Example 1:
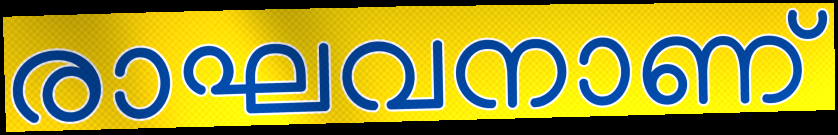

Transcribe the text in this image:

രാഘവനാണ്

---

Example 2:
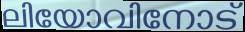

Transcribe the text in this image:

ലിയോവിനോട്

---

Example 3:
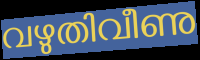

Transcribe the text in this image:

വഴുതിവീണു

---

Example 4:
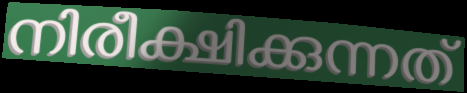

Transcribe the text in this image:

നിരീക്ഷിക്കുന്നത്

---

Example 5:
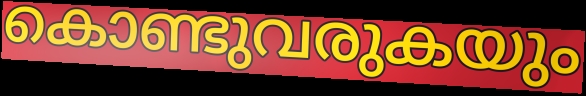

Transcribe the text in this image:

കൊണ്ടുവരുകയും